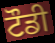
ਟੌਡੀ